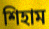
শিহাম